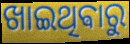
ଖାଇଥିଵାରୁ